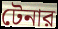
টেনার